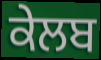
ਕੇਲਬ